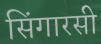
सिंगारसी